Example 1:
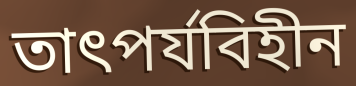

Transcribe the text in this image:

তাৎপর্যবিহীন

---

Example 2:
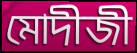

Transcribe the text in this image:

মোদীজী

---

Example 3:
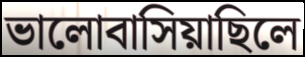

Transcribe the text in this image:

ভালোবাসিয়াছিলে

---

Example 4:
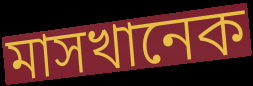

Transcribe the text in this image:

মাসখানেক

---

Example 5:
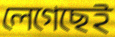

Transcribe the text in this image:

লেগেছেই